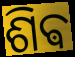
ଶିଵ